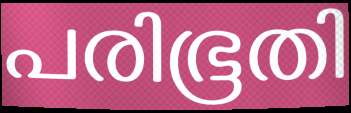
പരിഭൂതി